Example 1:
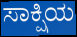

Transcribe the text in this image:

ಸಾಕ್ಷಿಯ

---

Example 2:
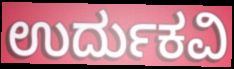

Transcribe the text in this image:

ಉರ್ದುಕವಿ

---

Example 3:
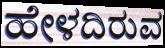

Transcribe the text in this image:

ಹೇಳದಿರುವ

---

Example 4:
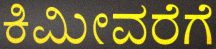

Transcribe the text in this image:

ಕಿಮೀವರೆಗೆ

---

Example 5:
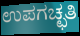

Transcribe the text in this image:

ಉಪಗಚ್ಛತಿ